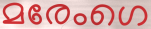
മരേംഗെ